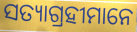
ସତ୍ୟାଗ୍ରହୀମାନେ